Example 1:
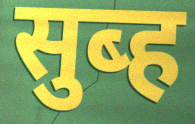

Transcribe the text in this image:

सुब्ह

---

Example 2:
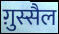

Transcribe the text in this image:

ग़ुस्सैल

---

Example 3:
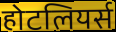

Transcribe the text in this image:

होटलियर्स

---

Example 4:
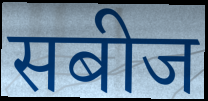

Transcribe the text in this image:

सबीज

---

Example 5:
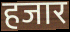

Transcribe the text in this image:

हजार